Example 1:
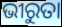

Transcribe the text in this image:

ଭୀରୁତା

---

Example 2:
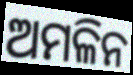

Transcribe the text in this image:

ଅମଳିନ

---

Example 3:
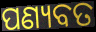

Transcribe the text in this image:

ପଣ୍ୟବତ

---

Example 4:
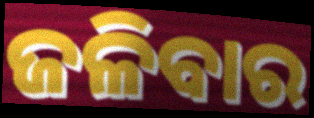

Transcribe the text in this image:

ଜଳିବାର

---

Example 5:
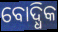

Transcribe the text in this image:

ବୋଦ୍ଧିକ